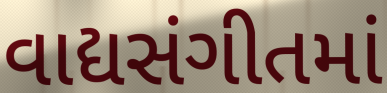
વાદ્યસંગીતમાં